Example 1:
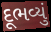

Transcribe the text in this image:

દૂભવ્યું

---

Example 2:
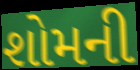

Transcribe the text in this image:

શોમની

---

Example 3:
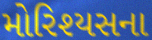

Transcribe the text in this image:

મોરિશ્યસના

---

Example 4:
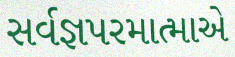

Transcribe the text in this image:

સર્વજ્ઞપરમાત્માએ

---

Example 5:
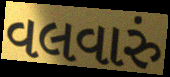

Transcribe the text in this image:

વલવારું